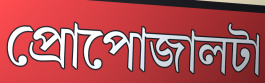
প্রোপোজালটা